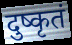
दुष्कृतं